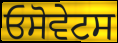
ਓਸੋਵੇਟਸ